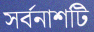
সর্বনাশটি